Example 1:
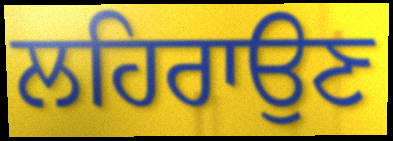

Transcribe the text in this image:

ਲਹਿਰਾਉਣ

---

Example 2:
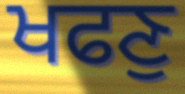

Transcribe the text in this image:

ਖਫਣੁ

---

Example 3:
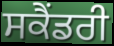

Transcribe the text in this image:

ਸਕੈਂਡਰੀ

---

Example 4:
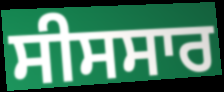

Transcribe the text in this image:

ਸੀਸਸਾਰ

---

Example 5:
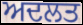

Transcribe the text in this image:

ਅਦਲਤ